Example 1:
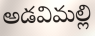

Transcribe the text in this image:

అడవిమల్లి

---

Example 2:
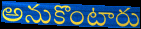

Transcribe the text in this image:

అనుకొంటారు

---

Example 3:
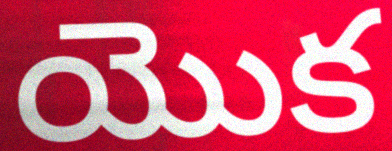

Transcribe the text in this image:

యొక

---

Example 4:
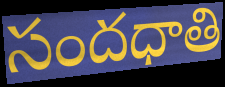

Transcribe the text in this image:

సందధాతి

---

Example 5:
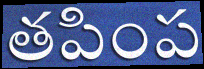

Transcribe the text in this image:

తపింప